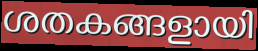
ശതകങ്ങളായി